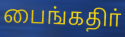
பைங்கதிர்